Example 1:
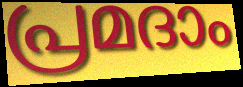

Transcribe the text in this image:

പ്രമദാം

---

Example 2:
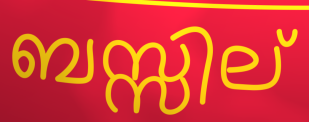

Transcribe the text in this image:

ബസ്സില്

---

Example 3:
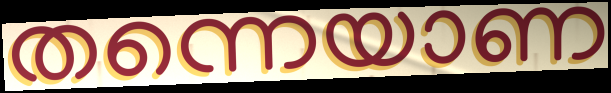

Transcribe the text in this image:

തന്നെയാണ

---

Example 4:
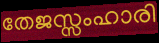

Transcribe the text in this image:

തേജസ്സംഹാരി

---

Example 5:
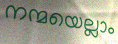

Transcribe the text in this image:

നന്മയെല്ലാം